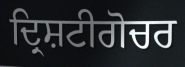
ਦ੍ਰਿਸ਼ਟੀਗੋਚਰ